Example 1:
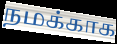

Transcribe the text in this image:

நமக்காக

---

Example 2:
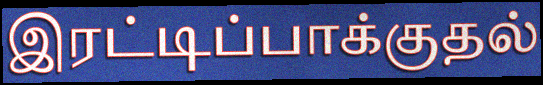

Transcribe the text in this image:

இரட்டிப்பாக்குதல்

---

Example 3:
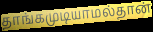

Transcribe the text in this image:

தாங்கமுடியாமல்தான்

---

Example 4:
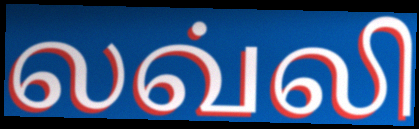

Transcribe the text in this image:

லவ்லி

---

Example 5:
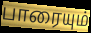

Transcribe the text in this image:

பாரையும்